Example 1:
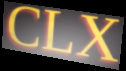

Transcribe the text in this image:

CLX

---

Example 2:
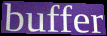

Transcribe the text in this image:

buffer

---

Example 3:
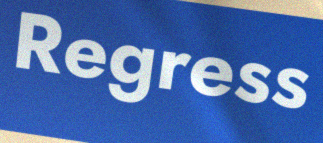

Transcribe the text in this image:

Regress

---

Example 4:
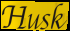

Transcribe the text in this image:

Husk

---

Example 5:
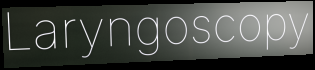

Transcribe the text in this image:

Laryngoscopy